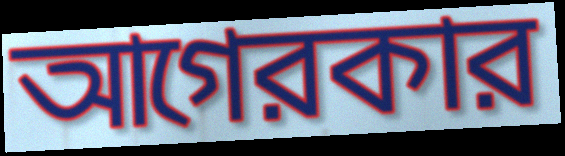
আগেরকার